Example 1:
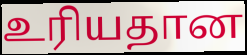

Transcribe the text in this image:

உரியதான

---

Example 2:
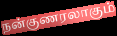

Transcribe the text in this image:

நன்குணரலாகும்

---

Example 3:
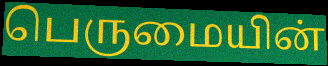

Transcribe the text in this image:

பெருமையின்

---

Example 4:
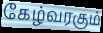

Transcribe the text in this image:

கேழ்வரகும்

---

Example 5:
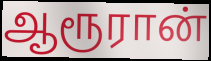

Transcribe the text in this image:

ஆரூரான்